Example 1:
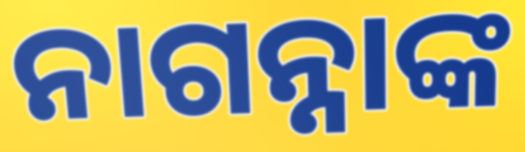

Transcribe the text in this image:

ନାଗନ୍ନାଙ୍କ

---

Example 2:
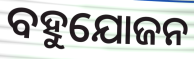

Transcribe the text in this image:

ବହୁଯୋଜନ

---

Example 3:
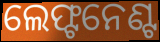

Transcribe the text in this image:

ଲେଫ୍ଟନେଣ୍ଟ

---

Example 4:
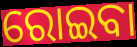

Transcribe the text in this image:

ରୋଇବା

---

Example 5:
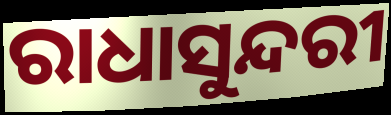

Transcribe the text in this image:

ରାଧାସୁନ୍ଦରୀ